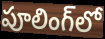
పూలింగ్‌లో